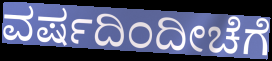
ವರ್ಷದಿಂದೀಚೆಗೆ